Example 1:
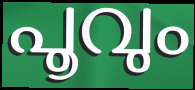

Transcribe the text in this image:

പൂവും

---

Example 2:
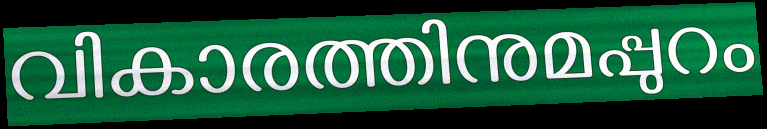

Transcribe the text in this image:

വികാരത്തിനുമപ്പുറം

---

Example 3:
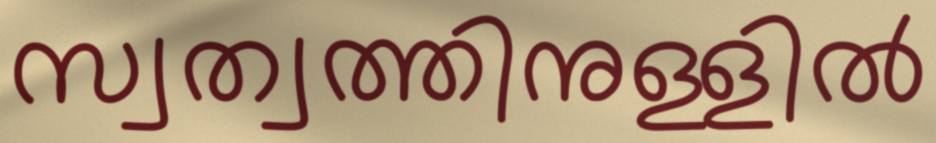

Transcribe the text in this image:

സ്വത്വത്തിനുള്ളിൽ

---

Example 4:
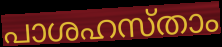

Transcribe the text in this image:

പാശഹസ്താം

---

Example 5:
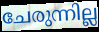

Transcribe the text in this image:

ചേരുന്നില്ല